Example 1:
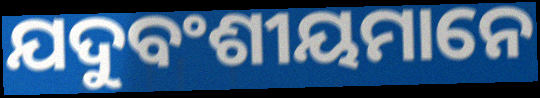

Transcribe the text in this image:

ଯଦୁବଂଶୀୟମାନେ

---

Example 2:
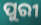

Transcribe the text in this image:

ପୁରୀ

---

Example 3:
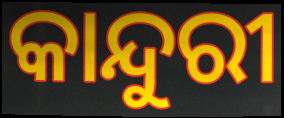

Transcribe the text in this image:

କାନ୍ଦୁରୀ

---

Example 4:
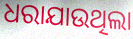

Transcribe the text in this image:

ଧରାଯାଉଥିଲା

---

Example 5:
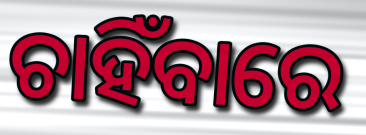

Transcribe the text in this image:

ଚାହିଁବାରେ